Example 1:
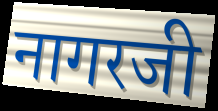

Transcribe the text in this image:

नागरजी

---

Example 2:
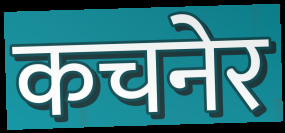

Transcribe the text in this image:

कचनेर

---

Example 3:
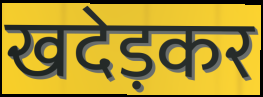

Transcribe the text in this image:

खदेड़कर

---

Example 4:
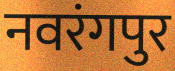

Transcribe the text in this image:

नवरंगपुर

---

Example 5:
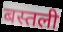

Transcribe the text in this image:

बस्तली